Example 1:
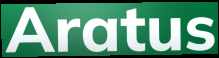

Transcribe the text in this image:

Aratus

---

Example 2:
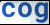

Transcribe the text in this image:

cog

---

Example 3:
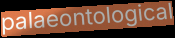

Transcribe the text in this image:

palaeontological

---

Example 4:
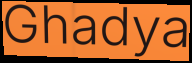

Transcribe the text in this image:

Ghadya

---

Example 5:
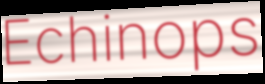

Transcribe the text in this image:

Echinops